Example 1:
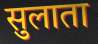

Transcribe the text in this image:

सुलाता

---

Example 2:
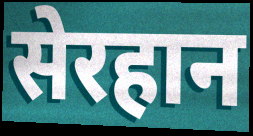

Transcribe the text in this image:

सेरहान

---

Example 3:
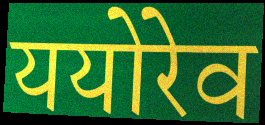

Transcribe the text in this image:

ययोरेव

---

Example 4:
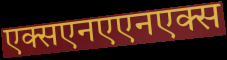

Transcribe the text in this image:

एक्सएनएएनएक्स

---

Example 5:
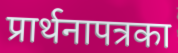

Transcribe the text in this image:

प्रार्थनापत्रका